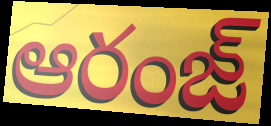
ఆరంజ్